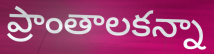
ప్రాంతాలకన్నా